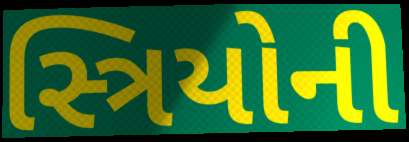
સ્ત્રિયોની